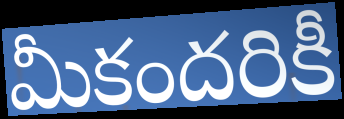
మీకందరికీ